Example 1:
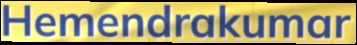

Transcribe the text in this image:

Hemendrakumar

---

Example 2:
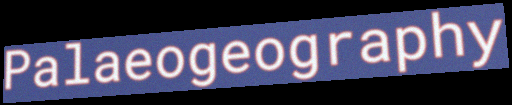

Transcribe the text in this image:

Palaeogeography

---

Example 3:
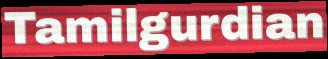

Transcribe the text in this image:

Tamilgurdian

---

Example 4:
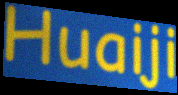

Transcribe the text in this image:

Huaiji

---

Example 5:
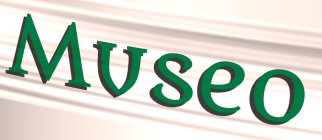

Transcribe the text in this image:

Museo